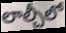
లాల్చీలో